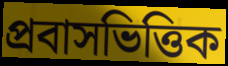
প্রবাসভিত্তিক